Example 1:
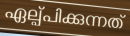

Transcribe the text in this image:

ഏല്പ്പിക്കുന്നത്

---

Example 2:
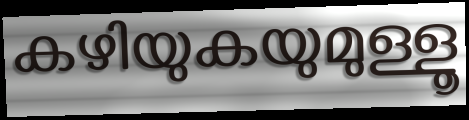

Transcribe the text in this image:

കഴിയുകയുമുള്ളൂ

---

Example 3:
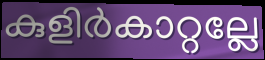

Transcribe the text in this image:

കുളിർകാറ്റല്ലേ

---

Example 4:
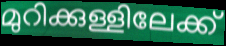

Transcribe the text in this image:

മുറിക്കുള്ളിലേക്ക്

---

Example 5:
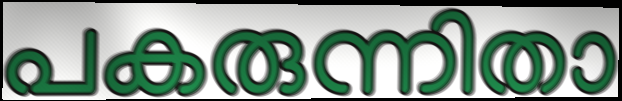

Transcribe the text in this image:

പകരുന്നിതാ